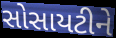
સોસાયટીને